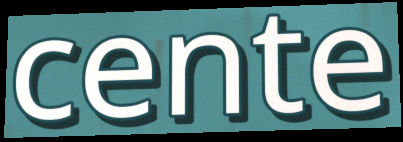
cente